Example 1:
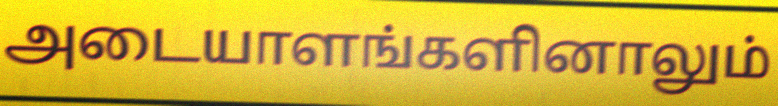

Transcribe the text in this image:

அடையாளங்களினாலும்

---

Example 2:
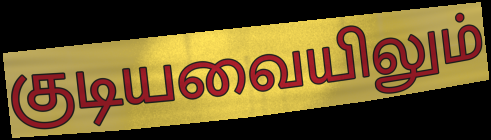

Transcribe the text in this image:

குடியவையிலும்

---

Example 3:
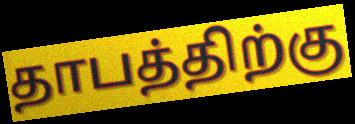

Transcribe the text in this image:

தாபத்திற்கு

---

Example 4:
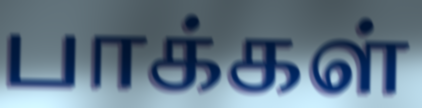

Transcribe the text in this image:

பாக்கள்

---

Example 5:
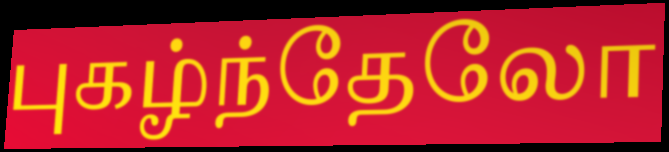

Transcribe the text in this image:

புகழ்ந்தேலோ